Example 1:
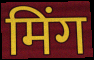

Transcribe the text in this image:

मिंग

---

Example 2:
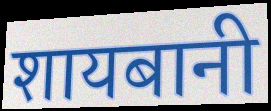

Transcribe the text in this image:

शायबानी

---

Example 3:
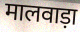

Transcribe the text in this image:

मालवाड़ा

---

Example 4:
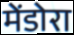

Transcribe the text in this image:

मेंडोरा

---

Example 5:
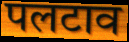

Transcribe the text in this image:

पलटाव